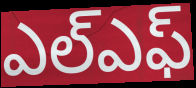
ఎల్ఎఫ్